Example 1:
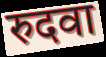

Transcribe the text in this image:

रुदवा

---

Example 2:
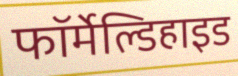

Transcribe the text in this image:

फॉर्मेल्डिहाइड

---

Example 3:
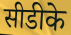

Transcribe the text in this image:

सीडीके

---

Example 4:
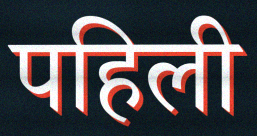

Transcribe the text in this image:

पहिली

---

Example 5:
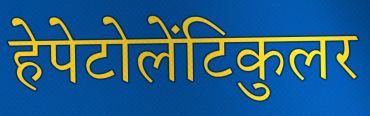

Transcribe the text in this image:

हेपेटोलेंटिकुलर